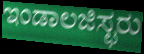
ಇಂಡಾಲಜಿಸ್ಟರು